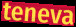
teneva